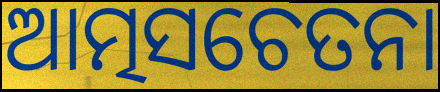
ଆତ୍ମସଚେତନା